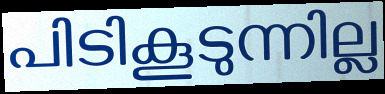
പിടികൂടുന്നില്ല